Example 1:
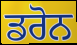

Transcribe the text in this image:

ਡਰੋਨ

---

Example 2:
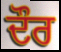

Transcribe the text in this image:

ਦੌਰ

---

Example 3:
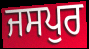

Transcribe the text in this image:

ਜਸਪੁਰ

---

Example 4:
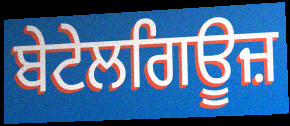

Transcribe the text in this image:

ਬੇਟੇਲਗਿਊਜ਼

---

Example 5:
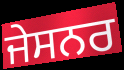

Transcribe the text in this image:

ਜੇਸਨਰ